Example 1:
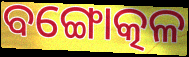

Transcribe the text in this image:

ବଙ୍ଗୋତ୍କଳ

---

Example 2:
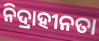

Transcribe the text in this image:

ନିଦ୍ରାହୀନତା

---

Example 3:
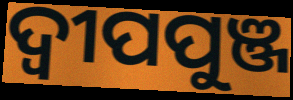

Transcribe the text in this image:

ଦ୍ୱୀପପୁଞ୍ଜ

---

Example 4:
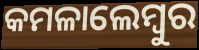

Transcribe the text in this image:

କମଳାଲେମ୍ବୁର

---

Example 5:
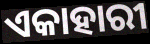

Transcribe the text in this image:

ଏକାହାରୀ